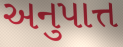
અનુપાત્ત